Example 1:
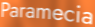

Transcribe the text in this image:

Paramecia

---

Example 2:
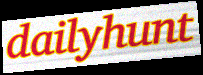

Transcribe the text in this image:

dailyhunt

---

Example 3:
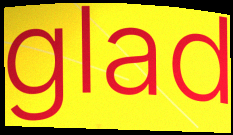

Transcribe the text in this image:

glad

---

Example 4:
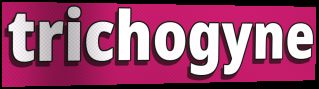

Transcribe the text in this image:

trichogyne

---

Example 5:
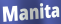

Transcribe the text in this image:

Manita